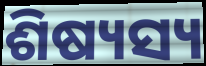
ଶିଷ୍ୟସ୍ୟ